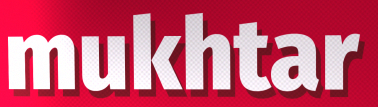
mukhtar